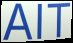
AIT